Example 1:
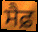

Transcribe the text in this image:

ਸੈਫ਼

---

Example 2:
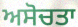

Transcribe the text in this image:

ਅਸੋਚਤਾ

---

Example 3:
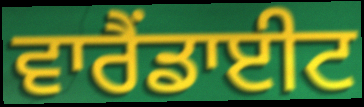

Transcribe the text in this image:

ਵਾਰੈਂਡਾਈਟ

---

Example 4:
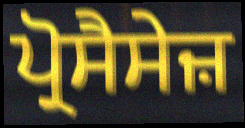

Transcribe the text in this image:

ਪ੍ਰੋਸੈਸੇਜ਼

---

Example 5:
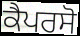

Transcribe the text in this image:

ਕੈਪਰਸੋ